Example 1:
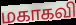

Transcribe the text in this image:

மகாகவி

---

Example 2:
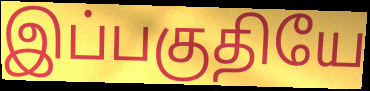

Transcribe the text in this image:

இப்பகுதியே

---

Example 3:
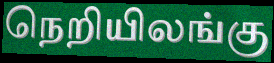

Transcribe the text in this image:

நெறியிலங்கு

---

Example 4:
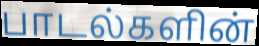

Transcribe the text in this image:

பாடல்களின்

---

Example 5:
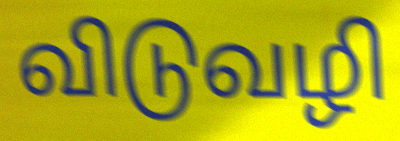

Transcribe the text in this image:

விடுவழி